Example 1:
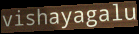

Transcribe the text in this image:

vishayagalu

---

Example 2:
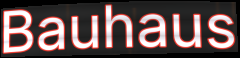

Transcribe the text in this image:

Bauhaus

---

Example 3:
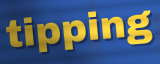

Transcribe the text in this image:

tipping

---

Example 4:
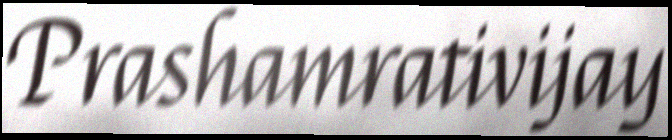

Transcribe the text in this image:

Prashamrativijay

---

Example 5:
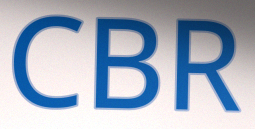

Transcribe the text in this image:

CBR